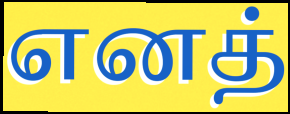
எனத்